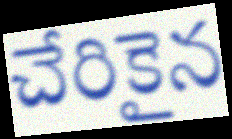
చేరికైన